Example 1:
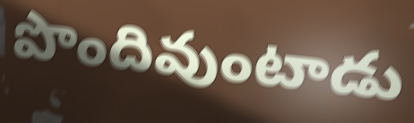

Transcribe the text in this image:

పొందివుంటాడు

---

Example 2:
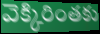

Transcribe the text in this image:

వెక్కిరింతకు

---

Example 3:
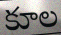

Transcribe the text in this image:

కూల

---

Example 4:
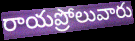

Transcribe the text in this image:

రాయప్రోలువారు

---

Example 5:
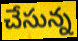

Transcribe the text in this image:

చేసున్న